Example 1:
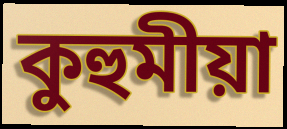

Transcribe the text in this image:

কুহুমীয়া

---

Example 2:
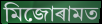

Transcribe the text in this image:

মিজোৰামত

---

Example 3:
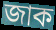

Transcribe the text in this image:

জাক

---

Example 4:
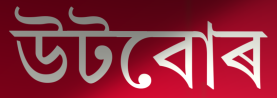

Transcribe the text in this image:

উটবোৰ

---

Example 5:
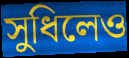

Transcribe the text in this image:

সুধিলেও